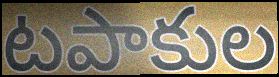
టపాకుల